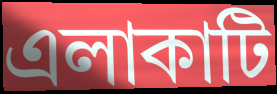
এলাকাটি